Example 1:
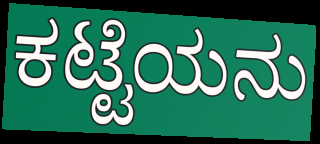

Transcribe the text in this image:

ಕಟ್ಟೆಯನು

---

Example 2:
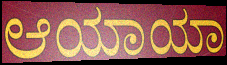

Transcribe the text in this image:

ಆಯಾಯಾ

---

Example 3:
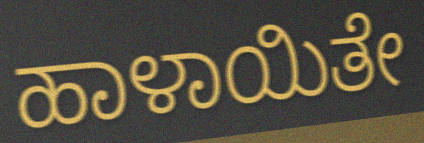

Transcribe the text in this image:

ಹಾಳಾಯಿತೇ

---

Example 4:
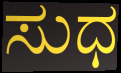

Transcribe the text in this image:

ಸುಧ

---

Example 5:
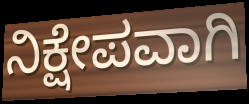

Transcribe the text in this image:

ನಿಕ್ಷೇಪವಾಗಿ